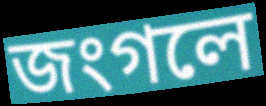
জংগলে